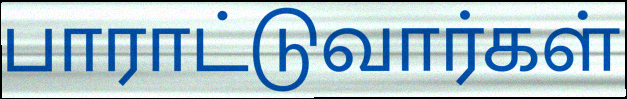
பாராட்டுவார்கள்